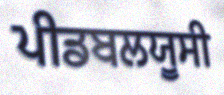
ਪੀਡਬਲਯੂਸੀ